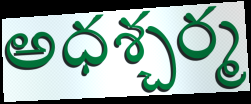
అధశ్చర్మ